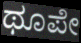
ಥೂಪೇ